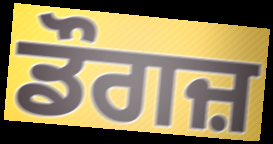
ਡੌਗਜ਼